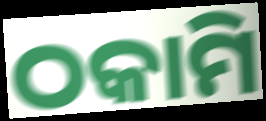
ଠକାମି